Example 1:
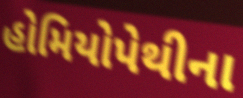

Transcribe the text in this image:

હોમિયોપેથીના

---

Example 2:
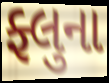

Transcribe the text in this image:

ફ્લુના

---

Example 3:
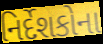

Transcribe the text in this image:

નિર્દેશકોના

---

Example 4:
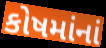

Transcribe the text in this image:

કોષમાંનાં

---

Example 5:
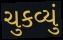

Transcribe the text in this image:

ચુકવ્યું